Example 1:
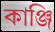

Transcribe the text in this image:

কাঞ্জি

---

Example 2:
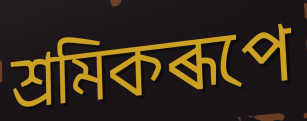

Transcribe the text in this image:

শ্ৰমিকৰূপে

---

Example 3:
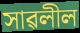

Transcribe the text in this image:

সাৱলীল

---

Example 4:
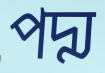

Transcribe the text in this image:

পদ্ম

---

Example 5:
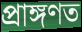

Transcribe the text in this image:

প্ৰাঙ্গণত